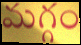
మగ్గం